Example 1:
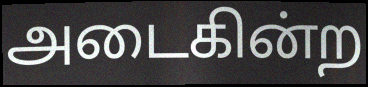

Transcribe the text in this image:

அடைகின்ற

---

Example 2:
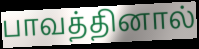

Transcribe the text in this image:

பாவத்தினால்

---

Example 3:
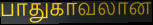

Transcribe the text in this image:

பாதுகாவலான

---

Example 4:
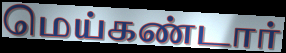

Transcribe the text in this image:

மெய்கண்டார்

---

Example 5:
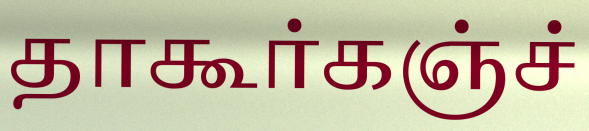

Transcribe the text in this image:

தாகூர்கஞ்ச்